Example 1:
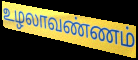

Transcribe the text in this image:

உழலாவண்ணம்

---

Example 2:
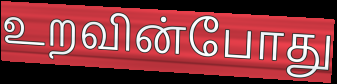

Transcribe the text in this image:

உறவின்போது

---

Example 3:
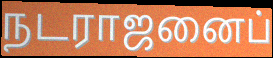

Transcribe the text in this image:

நடராஜனைப்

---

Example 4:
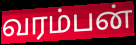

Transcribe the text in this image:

வரம்பன்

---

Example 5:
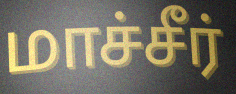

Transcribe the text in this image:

மாச்சீர்